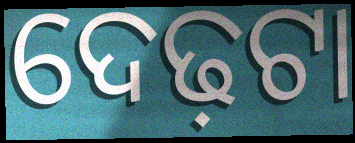
ଦେଢ଼ଟା